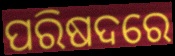
ପରିଷଦରେ